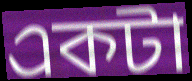
একটা